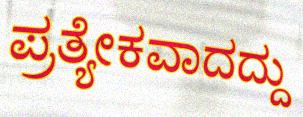
ಪ್ರತ್ಯೇಕವಾದದ್ದು